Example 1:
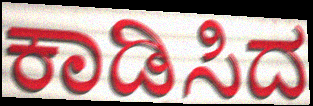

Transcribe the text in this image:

ಕಾಡಿಸಿದ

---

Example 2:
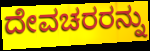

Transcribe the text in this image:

ದೇವಚರರನ್ನು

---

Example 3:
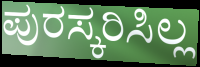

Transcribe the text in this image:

ಪುರಸ್ಕರಿಸಿಲ್ಲ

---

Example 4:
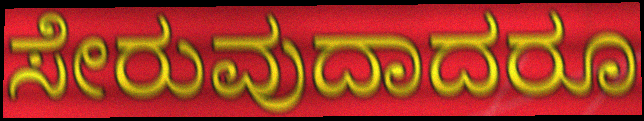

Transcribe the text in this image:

ಸೇರುವುದಾದರೂ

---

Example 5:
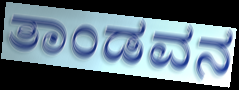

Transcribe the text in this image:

ತಾಂಡವನ